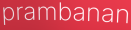
prambanan